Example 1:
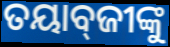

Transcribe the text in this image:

ତୟାବ୍‌ଜୀଙ୍କୁ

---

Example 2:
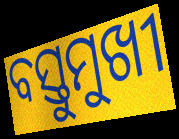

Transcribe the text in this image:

ବସ୍ତୁମୁଖୀ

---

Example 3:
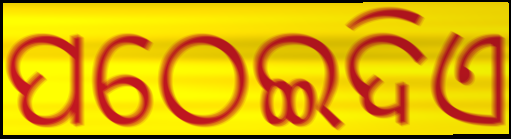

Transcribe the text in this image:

ପଠେଇଦିଏ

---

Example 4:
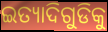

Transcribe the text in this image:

ଇତ୍ୟାଦିଗୁଡିକୁ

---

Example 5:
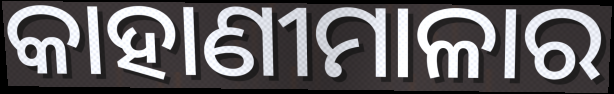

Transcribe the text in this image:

କାହାଣୀମାଳାର